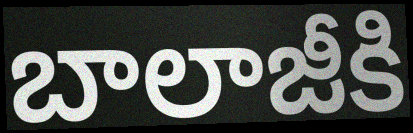
బాలాజీకి